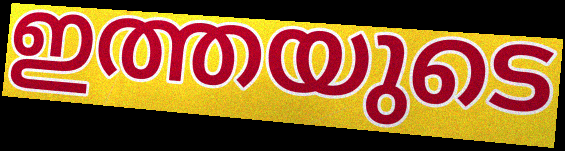
ഇത്തയുടെ